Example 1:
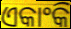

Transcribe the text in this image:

ଏକାଂକି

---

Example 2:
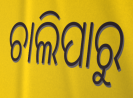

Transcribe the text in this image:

ଚାଲିପାରୁ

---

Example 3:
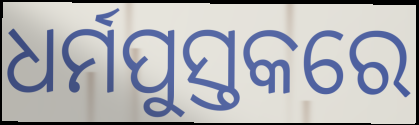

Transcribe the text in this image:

ଧର୍ମପୁସ୍ତକରେ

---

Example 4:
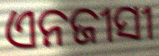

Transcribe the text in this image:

ଏନଜୀସୀ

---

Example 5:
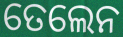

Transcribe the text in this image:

ତେଲେନ